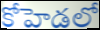
కోహెడలో